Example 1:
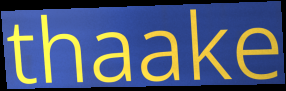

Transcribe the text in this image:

thaake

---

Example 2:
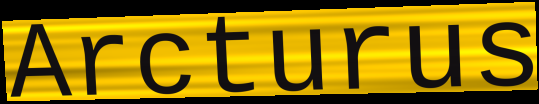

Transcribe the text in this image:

Arcturus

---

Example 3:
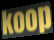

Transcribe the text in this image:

koop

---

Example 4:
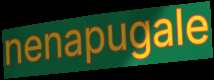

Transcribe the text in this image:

nenapugale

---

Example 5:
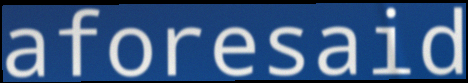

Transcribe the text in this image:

aforesaid